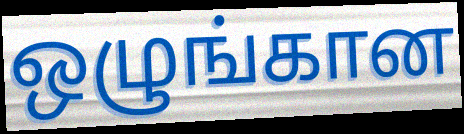
ஒழுங்கான